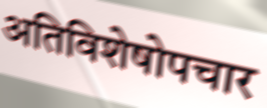
अतिविशेषोपचार